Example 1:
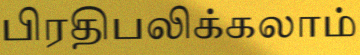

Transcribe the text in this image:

பிரதிபலிக்கலாம்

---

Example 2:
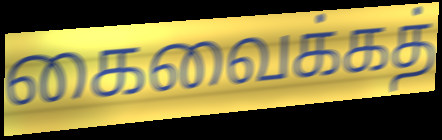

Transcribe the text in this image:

கைவைக்கத்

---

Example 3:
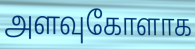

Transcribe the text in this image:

அளவுகோளாக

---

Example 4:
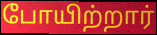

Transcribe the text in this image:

போயிற்றார்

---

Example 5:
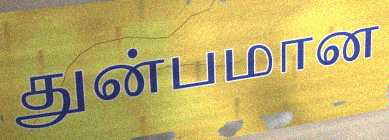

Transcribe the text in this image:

துன்பமான